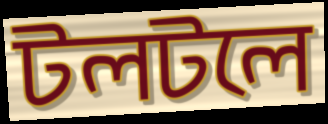
টলটলে